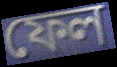
ফেল